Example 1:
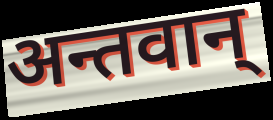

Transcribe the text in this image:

अन्तवान्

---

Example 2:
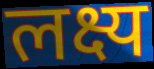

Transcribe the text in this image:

लक्ष्‍य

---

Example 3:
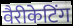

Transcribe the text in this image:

वैरीकेटिंग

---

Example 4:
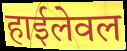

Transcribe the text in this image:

हाईलेवल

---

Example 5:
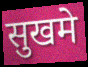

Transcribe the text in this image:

सुखमे